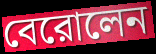
বেরোলেন